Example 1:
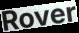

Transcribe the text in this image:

Rover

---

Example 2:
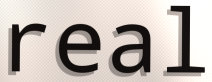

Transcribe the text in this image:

real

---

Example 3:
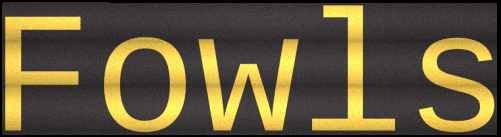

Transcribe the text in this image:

Fowls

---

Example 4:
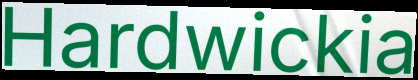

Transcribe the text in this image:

Hardwickia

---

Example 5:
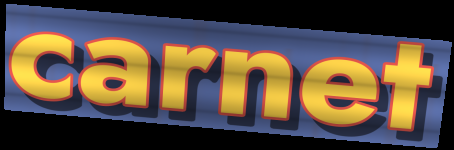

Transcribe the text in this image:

carnet